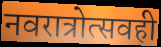
नवरात्रोत्सवही